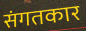
संगतकार